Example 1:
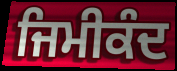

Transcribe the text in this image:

ਜਿਮੀਕੰਦ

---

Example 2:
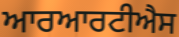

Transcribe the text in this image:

ਆਰਆਰਟੀਐਸ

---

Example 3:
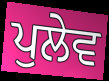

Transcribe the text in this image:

ਪੁਲੇਵ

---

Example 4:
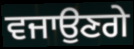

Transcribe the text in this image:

ਵਜਾਉਣਗੇ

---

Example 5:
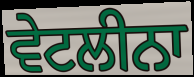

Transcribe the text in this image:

ਵੇਟਲੀਨਾ